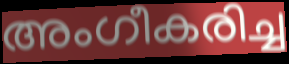
അംഗീകരിച്ച